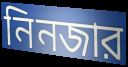
নিনজার